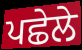
ਪਛੇਲੇ